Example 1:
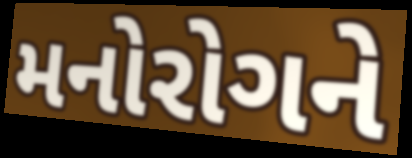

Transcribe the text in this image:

મનોરોગને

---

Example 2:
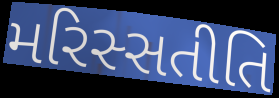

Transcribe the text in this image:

મરિસ્સતીતિ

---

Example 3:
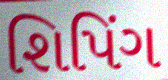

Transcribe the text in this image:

શિપિંગ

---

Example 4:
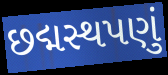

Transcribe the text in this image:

છદ્મસ્થપણું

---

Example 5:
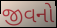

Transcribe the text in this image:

જીવનો